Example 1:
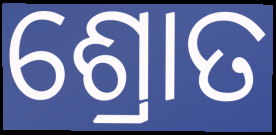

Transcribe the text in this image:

ଶ୍ରୋତ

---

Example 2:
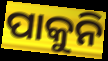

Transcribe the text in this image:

ପାକୁନି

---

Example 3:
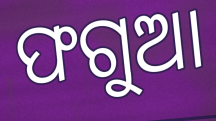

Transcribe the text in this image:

ଫଗୁଆ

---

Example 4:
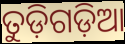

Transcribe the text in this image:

ତୁଡ଼ିଗଡ଼ିଆ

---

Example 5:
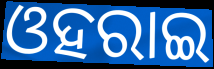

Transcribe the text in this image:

ଓହରାଇ